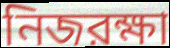
নিজরক্ষা